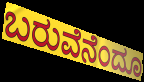
ಬರುವೆನೆಂದೂ